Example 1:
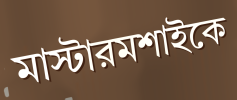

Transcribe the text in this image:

মাস্টারমশাইকে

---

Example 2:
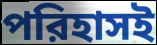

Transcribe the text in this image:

পরিহাসই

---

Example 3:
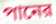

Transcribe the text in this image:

পানের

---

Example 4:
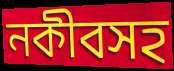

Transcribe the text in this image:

নকীবসহ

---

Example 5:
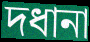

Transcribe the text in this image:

দধানা